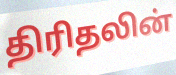
திரிதலின்